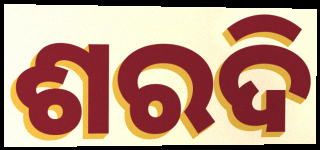
ଶରଦି